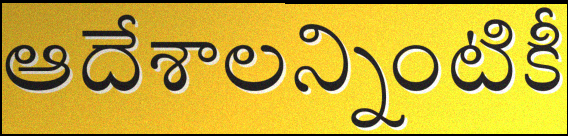
ఆదేశాలన్నింటికీ